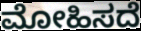
ಮೋಹಿಸದೆ